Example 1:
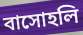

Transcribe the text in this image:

বাসোহলি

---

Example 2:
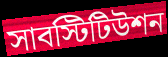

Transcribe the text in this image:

সাবস্টিটিউশন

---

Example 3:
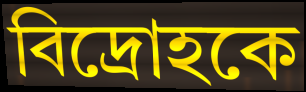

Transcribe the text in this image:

বিদ্রোহকে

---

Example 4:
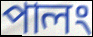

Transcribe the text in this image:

পালং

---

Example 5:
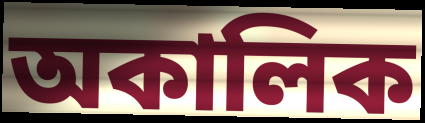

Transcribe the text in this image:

অকালিক